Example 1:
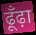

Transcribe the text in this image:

ढूँढ़ा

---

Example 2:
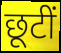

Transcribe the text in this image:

छूटीं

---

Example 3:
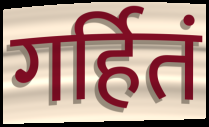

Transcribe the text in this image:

गर्हितं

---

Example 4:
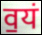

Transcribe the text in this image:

व॒यं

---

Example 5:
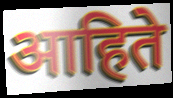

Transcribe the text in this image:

आहिते